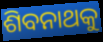
ଶିବନାଥକୁ